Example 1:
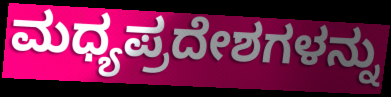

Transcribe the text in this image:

ಮಧ್ಯಪ್ರದೇಶಗಳನ್ನು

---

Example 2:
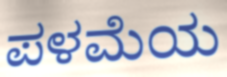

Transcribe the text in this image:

ಪಳಮೆಯ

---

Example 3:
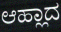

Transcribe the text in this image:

ಆಹ್ಲಾದ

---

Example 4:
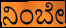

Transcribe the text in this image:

ನಿಂಬೇ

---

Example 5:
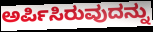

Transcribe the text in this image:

ಅರ್ಪಿಸಿರುವುದನ್ನು